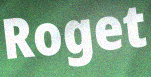
Roget